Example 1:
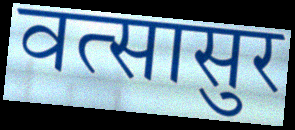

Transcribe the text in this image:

वत्सासुर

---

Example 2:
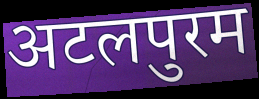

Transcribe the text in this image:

अटलपुरम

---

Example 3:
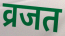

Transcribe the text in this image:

व्रजत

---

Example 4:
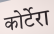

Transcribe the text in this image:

कोर्टेरा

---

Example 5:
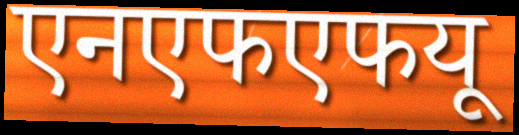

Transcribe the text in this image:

एनएफएफयू